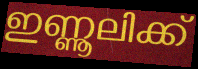
ഇണ്ണൂലിക്ക്